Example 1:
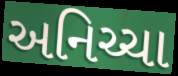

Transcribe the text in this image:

અનિચ્ચા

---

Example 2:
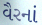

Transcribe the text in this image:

વૈરનાં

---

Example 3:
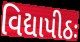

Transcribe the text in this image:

વિદ્યાપીઠઃ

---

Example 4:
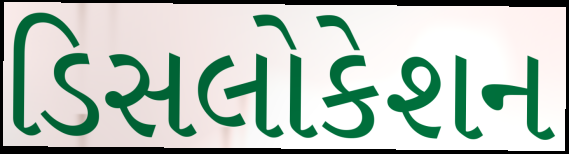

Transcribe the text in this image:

ડિસલોકેશન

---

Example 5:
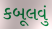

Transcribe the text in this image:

કબૂલવું